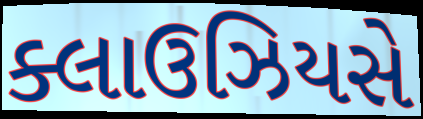
ક્લાઉઝિયસે